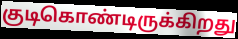
குடிகொண்டிருக்கிறது